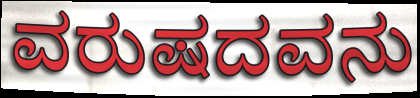
ವರುಷದವನು